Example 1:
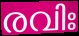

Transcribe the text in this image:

രവിഃ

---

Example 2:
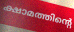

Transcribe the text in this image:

ക്ഷാമത്തിന്റെ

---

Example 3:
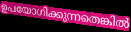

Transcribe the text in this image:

ഉപയോഗിക്കുന്നതെങ്കിൽ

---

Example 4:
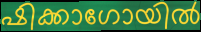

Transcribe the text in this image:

ഷിക്കാഗോയിൽ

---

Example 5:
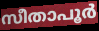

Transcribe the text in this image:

സീതാപൂർ